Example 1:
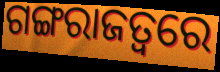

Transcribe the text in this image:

ଗଙ୍ଗରାଜତ୍ୱରେ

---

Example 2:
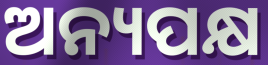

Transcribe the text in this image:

ଅନ୍ୟପକ୍ଷ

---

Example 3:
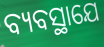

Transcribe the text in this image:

ବ୍ୟବସ୍ଥାଯେ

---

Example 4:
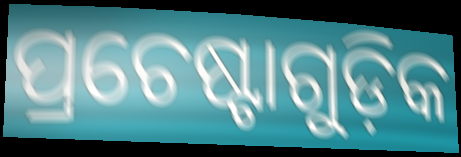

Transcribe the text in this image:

ପ୍ରଚେଷ୍ଟାଗୁଡ଼ିକ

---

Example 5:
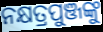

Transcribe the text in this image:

ନକ୍ଷତ୍ରପୁଞ୍ଜଙ୍କୁ